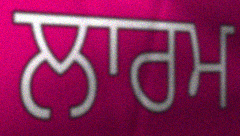
ਲਾਰਮ